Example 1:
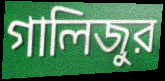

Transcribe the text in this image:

গালিজুর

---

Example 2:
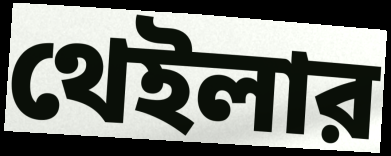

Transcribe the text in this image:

থেইলার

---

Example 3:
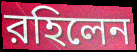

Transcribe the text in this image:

রহিলেন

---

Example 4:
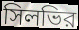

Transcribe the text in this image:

সিলভির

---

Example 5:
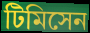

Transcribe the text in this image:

টিমিসেন